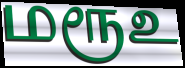
மரூஉ